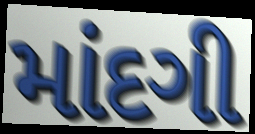
માંદગી